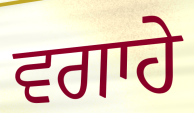
ਵਗਾਹੇ